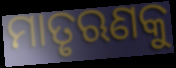
ମାତୃଋଣକୁ